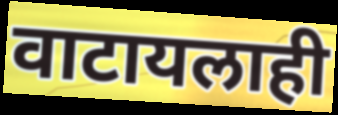
वाटायलाही